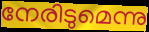
നേരിടുമെന്നു